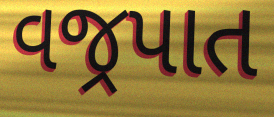
વજ્રપાત